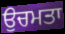
ਉਚਮਤਾ